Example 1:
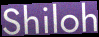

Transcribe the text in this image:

Shiloh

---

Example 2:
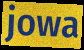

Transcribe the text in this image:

jowa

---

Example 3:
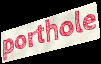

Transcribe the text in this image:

porthole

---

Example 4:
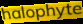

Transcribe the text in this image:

halophyte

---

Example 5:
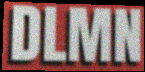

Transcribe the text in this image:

DLMN